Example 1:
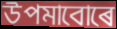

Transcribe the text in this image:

উপমাবোৰে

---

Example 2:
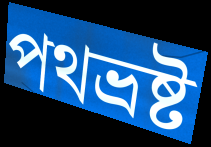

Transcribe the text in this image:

পথভ্ৰষ্ট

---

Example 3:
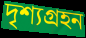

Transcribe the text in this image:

দৃশ্যগ্ৰহন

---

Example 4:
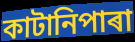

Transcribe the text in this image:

কাটানিপাৰা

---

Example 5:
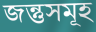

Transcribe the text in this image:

জন্তুসমূহ